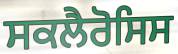
ਸਕਲੈਰੋਸਿਸ